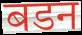
बडन